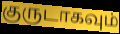
குருடாகவும்